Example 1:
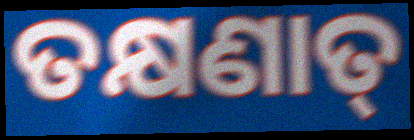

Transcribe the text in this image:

ତକ୍ଷଣାତ୍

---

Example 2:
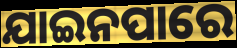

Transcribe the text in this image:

ଯାଇନପାରେ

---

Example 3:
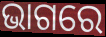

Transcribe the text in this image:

ଭାଗରେ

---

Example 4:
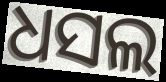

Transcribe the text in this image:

ଧସଲ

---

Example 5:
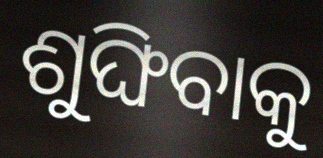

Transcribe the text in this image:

ଶୁଙ୍ଘିବାକୁ